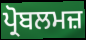
ਪ੍ਰੋਬਲਮਜ਼